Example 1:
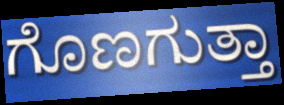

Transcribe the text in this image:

ಗೊಣಗುತ್ತಾ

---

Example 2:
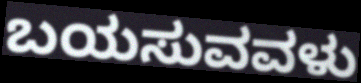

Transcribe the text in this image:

ಬಯಸುವವಳು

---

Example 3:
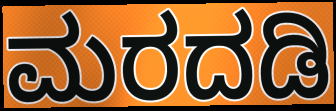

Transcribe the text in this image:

ಮರದಡಿ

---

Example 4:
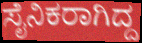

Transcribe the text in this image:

ಸೈನಿಕರಾಗಿದ್ದ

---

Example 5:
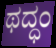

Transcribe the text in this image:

ಥದ್ಧಂ